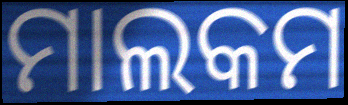
ମାଲକମ